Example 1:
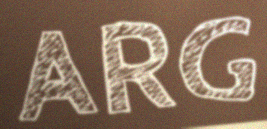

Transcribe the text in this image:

ARG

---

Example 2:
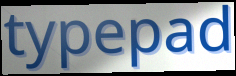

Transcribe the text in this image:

typepad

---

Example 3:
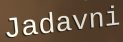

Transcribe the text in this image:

Jadavni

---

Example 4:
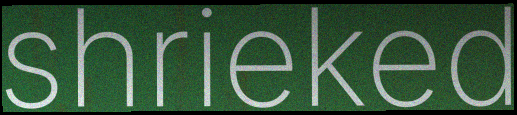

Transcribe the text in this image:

shrieked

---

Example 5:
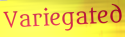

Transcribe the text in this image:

Variegated